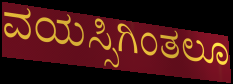
ವಯಸ್ಸಿಗಿಂತಲೂ